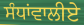
ਸੰਧਾਂਵਾਲੀਏ